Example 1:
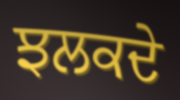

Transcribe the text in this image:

ਝਲਕਦੇ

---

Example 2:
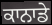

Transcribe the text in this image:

ਕਾਨਾਡੇ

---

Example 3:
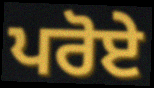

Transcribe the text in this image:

ਪਰੋਏ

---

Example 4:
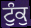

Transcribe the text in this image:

ਟੁੰਕੁ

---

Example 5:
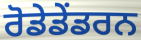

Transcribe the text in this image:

ਰੋਡੇਡੇਂਡਰਨ